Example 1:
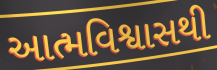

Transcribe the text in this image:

આત્મવિશ્વાસથી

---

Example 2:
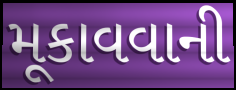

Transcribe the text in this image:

મૂકાવવાની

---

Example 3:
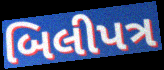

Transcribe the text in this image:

બિલીપત્ર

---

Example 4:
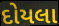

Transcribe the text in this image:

દોયલા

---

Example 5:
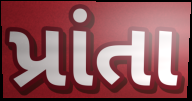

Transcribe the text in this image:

પ્રાંતા